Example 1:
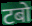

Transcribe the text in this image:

टबो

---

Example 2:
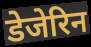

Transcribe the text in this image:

डेजेरिन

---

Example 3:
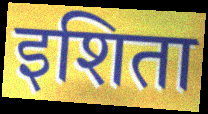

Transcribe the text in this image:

इशिता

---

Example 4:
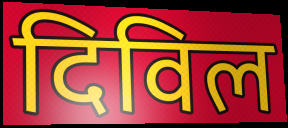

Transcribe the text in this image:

दिविल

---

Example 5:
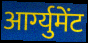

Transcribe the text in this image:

आर्ग्युमेंट